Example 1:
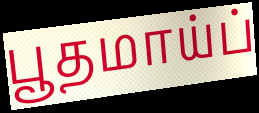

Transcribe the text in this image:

பூதமாய்ப்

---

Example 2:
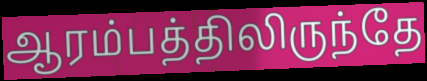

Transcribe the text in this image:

ஆரம்பத்திலிருந்தே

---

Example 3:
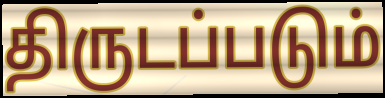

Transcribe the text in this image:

திருடப்படும்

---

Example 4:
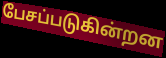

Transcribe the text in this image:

பேசப்படுகின்றன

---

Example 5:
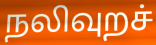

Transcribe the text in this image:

நலிவுறச்